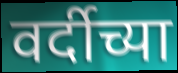
वर्दीच्या